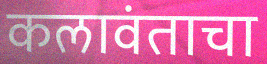
कलावंताचा